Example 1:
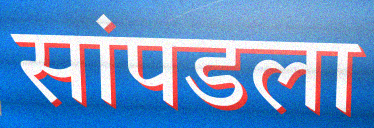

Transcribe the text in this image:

सांपडला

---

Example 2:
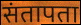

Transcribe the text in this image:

संतापता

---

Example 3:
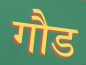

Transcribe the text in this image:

गौड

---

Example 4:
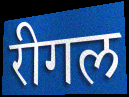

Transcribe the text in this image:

रीगल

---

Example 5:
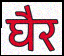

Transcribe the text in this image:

घैर